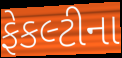
ફેકલ્ટીના